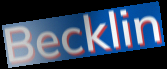
Becklin